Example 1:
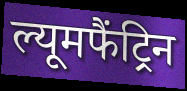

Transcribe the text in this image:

ल्यूमफैंट्रिन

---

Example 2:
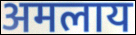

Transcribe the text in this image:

अमलाय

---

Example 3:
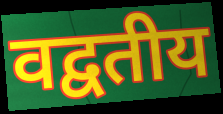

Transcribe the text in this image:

वद्वतीय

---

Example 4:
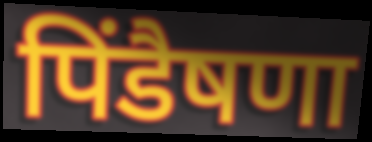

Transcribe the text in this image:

पिंडैषणा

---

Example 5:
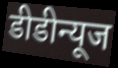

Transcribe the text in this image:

डीडीन्यूज